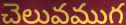
చెలువముగ